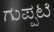
ಗುಪ್ಪಟೆ